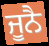
ਜੂਨੈ